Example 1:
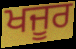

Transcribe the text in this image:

ਖਜੂਰ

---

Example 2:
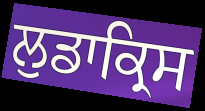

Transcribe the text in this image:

ਲੁਡਾਕ੍ਰਿਸ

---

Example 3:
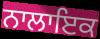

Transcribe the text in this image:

ਨਾਲਾਇਕ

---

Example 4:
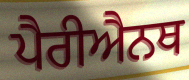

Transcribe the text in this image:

ਪੈਰੀਐਨਥ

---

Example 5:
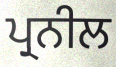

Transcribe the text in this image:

ਪ੍ਰਨੀਲ